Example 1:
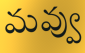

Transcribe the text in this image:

మవ్వు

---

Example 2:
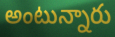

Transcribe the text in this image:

అంటున్నారు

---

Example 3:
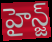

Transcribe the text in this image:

హైన్జ్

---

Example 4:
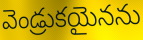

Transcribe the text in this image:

వెండ్రుకయైనను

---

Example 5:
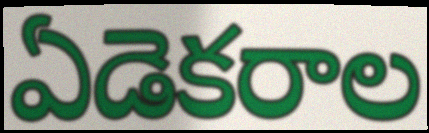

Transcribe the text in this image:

ఏడెకరాల